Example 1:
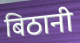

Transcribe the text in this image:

बिठानी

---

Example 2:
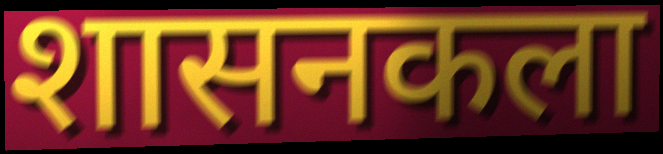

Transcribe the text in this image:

शासनकला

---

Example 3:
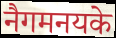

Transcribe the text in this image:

नैगमनयके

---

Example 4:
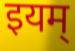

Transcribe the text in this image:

इयम्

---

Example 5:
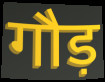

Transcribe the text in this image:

गौड़